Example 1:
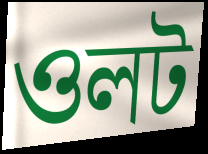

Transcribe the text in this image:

ওলট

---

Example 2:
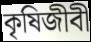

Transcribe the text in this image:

কৃষিজীবী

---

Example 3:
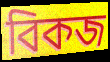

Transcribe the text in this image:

বিকজ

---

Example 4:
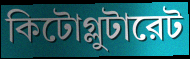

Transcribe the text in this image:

কিটোগ্লুটারেট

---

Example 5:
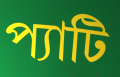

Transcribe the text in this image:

প্যাটি